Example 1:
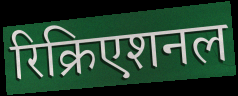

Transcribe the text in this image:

रिक्रिएशनल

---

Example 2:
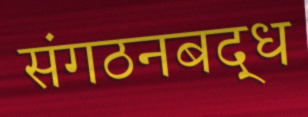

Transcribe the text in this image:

संगठनबद्ध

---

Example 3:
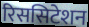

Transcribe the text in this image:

रिससिटेशन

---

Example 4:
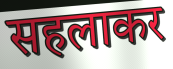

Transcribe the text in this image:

सहलाकर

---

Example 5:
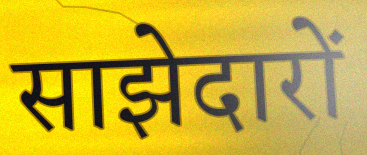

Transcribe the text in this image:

साझेदारों